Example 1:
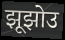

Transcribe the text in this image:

झूझोउ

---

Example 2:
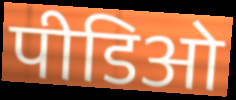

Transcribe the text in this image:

पीडिओ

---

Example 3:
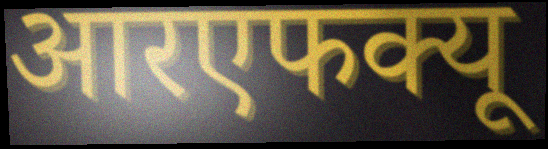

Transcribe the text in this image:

आरएफक्यू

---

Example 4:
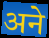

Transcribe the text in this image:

अने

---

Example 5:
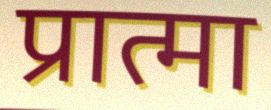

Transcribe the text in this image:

प्रात्मा